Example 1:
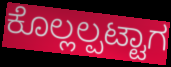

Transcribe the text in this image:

ಕೊಲ್ಲಲ್ಪಟ್ಟಾಗ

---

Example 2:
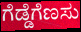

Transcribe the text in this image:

ಗೆಡ್ಡೆಗೆಣಸು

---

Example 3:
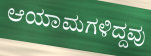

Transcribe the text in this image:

ಆಯಾಮಗಳಿದ್ದವು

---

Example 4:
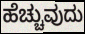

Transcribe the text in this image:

ಹೆಚ್ಚುವುದು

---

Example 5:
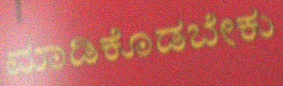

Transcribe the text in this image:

ಮಾಡಿಕೊಡಬೇಕು